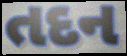
તદન